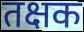
तक्षक